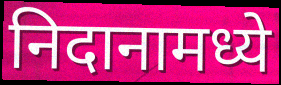
निदानामध्ये